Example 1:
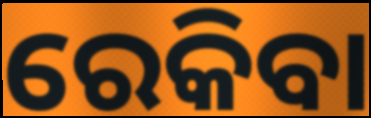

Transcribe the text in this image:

ରେକିବା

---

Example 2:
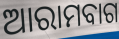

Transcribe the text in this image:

ଆରାମବାଗ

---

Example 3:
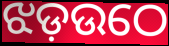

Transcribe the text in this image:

ଝଡ଼ଉଠେ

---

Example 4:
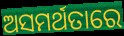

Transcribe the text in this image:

ଅସମର୍ଥତାରେ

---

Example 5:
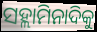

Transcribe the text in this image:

ସହ୍ଲାମିନାଦିକୁ